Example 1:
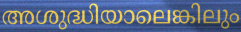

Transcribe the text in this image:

അശുദ്ധിയാലെങ്കിലും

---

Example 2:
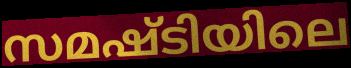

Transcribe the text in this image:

സമഷ്ടിയിലെ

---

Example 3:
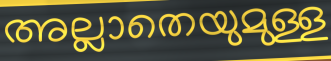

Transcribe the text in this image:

അല്ലാതെയുമുള്ള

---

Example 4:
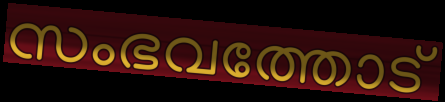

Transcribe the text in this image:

സംഭവത്തോട്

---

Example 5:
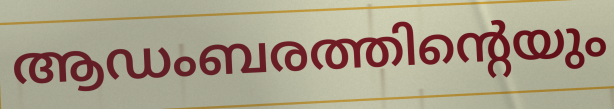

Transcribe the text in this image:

ആഡംബരത്തിന്റെയും